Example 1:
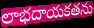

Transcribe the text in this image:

లాభదాయకతను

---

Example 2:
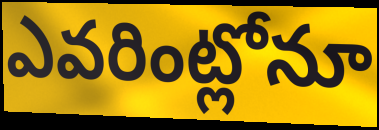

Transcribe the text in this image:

ఎవరింట్లోనూ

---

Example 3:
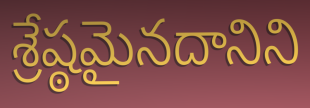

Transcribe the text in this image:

శ్రేష్ఠమైనదానిని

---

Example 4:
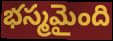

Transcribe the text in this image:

భస్మమైంది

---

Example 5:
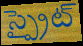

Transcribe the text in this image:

స్ప్రైట్